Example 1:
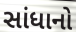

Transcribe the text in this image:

સાંધાનો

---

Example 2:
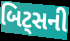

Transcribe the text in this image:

બિટ્સની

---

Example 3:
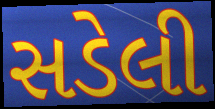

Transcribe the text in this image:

સડેલી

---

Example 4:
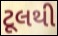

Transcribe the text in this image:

ટૂલથી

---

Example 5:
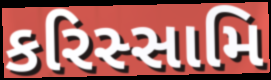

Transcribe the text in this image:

કરિસ્સામિ